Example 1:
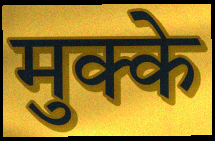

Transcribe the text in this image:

मुक्‍के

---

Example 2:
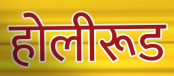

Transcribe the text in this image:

होलीरूड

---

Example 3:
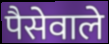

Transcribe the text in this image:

पैसेवाले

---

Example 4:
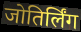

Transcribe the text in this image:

जोतिर्लिंग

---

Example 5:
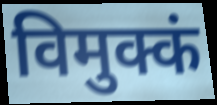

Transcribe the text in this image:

विमुक्कं